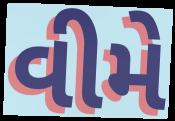
વીમે